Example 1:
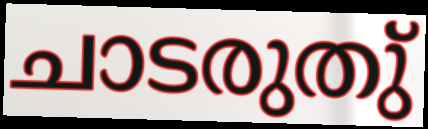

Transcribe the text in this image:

ചാടരുതു്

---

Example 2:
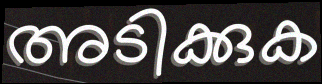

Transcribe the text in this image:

അടിക്കുക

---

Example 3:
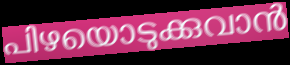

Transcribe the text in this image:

പിഴയൊടുക്കുവാൻ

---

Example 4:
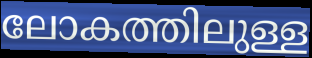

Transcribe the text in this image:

ലോകത്തിലുള്ള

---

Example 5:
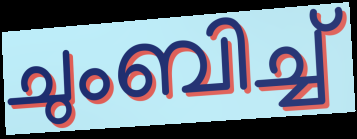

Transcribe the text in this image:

ചുംബിച്ച്